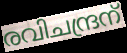
രവിചന്ദ്രന്